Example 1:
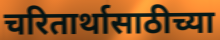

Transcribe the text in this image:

चरितार्थासाठीच्या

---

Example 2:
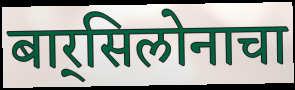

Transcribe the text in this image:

बार्सिलोनाचा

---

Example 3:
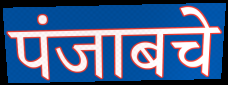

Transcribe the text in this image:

पंजाबचे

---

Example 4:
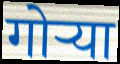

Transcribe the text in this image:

गोऱ्या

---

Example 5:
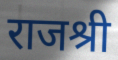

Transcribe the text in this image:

राजश्री